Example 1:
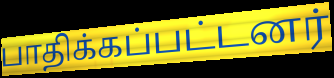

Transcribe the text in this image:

பாதிக்கப்பட்டனர்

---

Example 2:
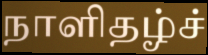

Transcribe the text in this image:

நாளிதழ்ச்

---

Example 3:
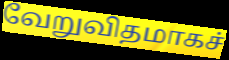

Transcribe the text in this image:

வேறுவிதமாகச்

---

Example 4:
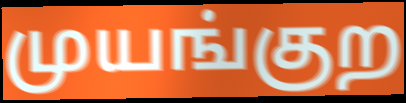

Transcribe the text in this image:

முயங்குற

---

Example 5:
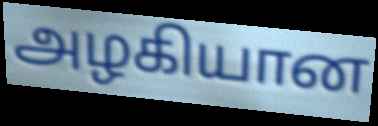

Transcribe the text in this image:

அழகியான